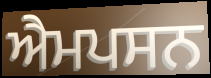
ਐਮਪਸਨ